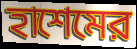
হাশেমের